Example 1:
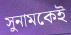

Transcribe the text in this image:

সুনামকেই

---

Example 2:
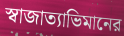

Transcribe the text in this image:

স্বাজাত্যাভিমানের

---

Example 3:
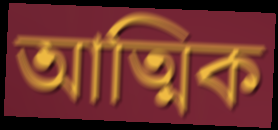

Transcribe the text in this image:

আত্মিক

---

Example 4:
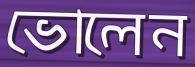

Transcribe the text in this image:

ভোলেন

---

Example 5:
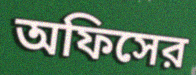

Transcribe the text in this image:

অফিসের